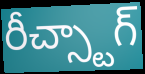
రీచ్స్టాగ్